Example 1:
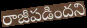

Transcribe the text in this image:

రాజీపడిందని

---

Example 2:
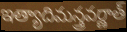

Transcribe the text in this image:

ఇత్యాదిమన్త్రవర్ణాత్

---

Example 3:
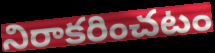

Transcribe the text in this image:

నిరాకరించటం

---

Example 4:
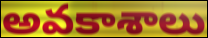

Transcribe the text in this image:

అవకాశాలు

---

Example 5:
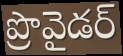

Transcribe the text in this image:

ప్రొవైడర్